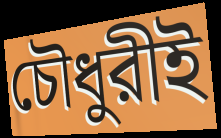
চৌধুরীই